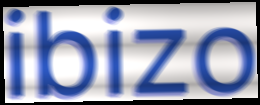
ibizo